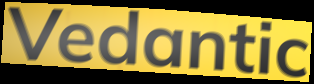
Vedantic